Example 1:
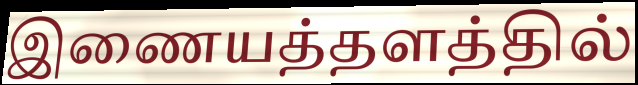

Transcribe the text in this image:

இணையத்தளத்தில்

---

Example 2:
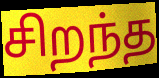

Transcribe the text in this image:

சிறந்த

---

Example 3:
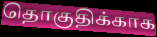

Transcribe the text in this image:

தொகுதிக்காக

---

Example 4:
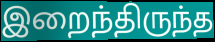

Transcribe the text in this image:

இறைந்திருந்த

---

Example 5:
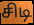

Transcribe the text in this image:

சிடி